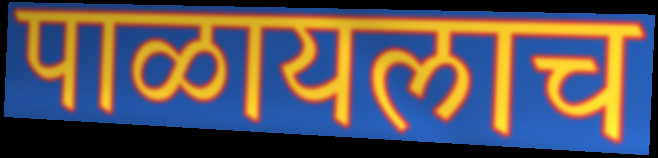
पाळायलाच